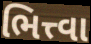
ભિત્ત્વા